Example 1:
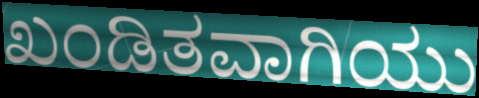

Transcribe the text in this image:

ಖಂಡಿತವಾಗಿಯು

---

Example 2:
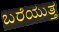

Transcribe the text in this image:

ಬರೆಯುತ್ತ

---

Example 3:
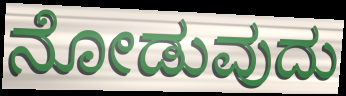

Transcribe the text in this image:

ನೋಡುವುದು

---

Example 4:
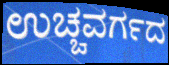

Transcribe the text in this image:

ಉಚ್ಚವರ್ಗದ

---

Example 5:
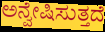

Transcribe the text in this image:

ಅನ್ವೇಷಿಸುತ್ತದೆ